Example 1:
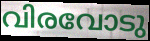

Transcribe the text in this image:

വിരവോടു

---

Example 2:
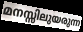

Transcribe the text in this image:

മനസ്സിലുയരുന്ന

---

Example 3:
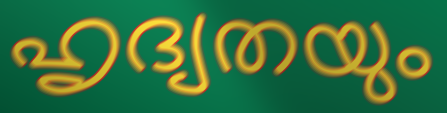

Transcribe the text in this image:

ഹൃദ്യതയും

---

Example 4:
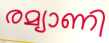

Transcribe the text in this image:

രമ്യാണി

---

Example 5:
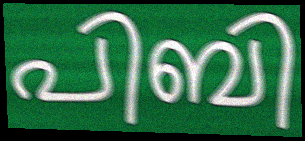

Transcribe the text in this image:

പിബി